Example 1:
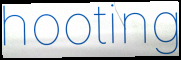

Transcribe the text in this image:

hooting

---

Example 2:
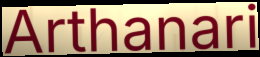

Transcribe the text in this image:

Arthanari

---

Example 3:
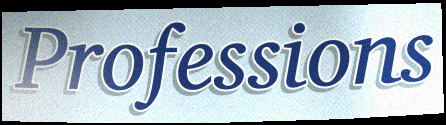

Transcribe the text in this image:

Professions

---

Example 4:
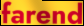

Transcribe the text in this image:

farend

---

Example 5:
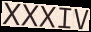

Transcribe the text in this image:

XXXIV